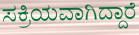
ಸಕ್ರಿಯವಾಗಿದ್ದಾರೆ